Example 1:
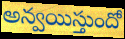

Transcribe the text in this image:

అన్వయిస్తుందో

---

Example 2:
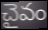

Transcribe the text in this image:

చైవం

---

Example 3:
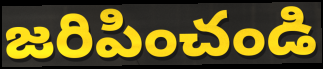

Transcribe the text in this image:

జరిపించండి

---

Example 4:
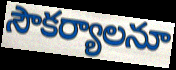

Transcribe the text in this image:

సౌకర్యాలనూ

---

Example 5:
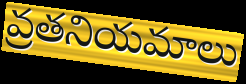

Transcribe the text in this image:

వ్రతనియమాలు